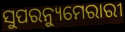
ସୁପରନ୍ୟୁମେରାରୀ